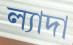
ল্যাদা